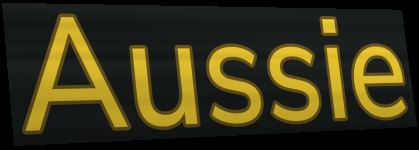
Aussie